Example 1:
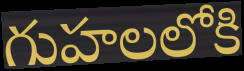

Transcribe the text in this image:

గుహలలోకి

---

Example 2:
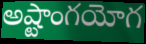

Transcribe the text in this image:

అష్టాంగయోగ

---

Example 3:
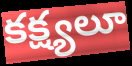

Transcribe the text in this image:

కక్ష్యలూ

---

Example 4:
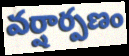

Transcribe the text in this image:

వర్షార్పణం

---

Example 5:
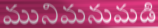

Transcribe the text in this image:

మునిమనుమడి